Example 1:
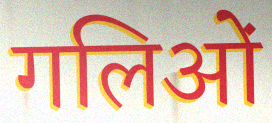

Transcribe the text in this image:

गलिओं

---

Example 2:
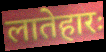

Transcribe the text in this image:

लातेहारः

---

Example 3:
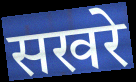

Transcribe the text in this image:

सखरे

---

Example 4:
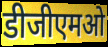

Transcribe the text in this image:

डीजीएमओ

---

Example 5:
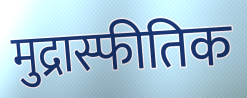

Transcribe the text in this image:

मुद्रास्फीतिक